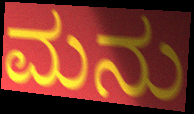
ಮನು